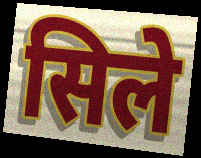
सिले